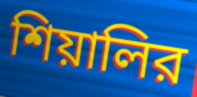
শিয়ালির